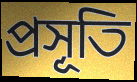
প্রসূতি